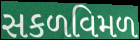
સકળવિમળ